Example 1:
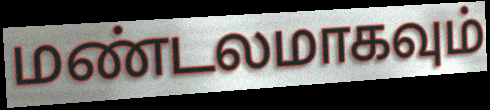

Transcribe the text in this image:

மண்டலமாகவும்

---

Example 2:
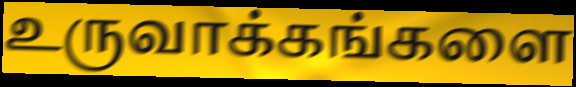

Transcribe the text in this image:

உருவாக்கங்களை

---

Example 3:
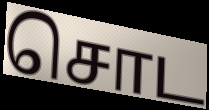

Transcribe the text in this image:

சொட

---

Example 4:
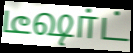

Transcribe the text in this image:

டீஷர்ட்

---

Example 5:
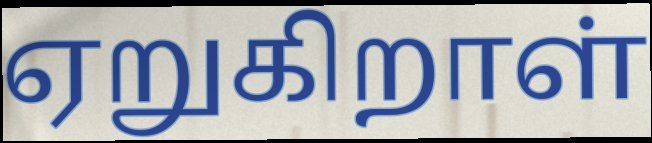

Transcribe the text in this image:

ஏறுகிறாள்